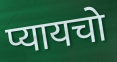
प्यायचो